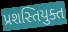
પ્રશસ્તિયુક્ત